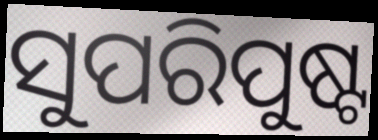
ସୁପରିପୁଷ୍ଟ